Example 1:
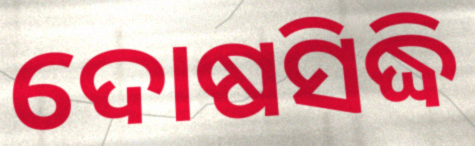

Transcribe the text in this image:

ଦୋଷସିଦ୍ଧି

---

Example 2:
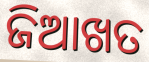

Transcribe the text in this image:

ଜିଆଖତ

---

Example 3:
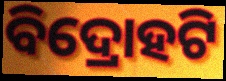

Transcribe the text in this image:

ବିଦ୍ରୋହଟି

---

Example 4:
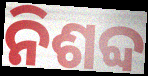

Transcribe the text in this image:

ନିଶବ୍ଦ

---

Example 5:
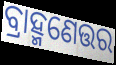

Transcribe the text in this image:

ବ୍ରାହ୍ମଣେତ୍ତର